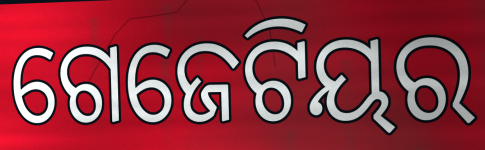
ଗେଜେଟିୟର